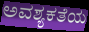
ಅವಶ್ಯಕತೆಯ